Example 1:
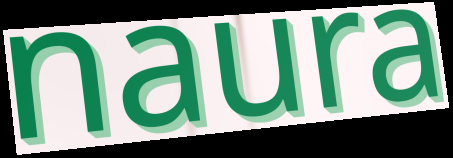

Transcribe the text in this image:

naura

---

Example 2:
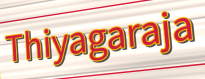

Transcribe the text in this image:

Thiyagaraja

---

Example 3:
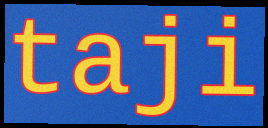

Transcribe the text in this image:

taji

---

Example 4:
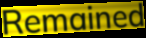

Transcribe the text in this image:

Remained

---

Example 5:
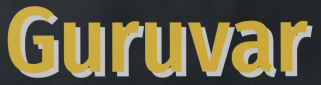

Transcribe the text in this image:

Guruvar